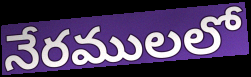
నేరములలో